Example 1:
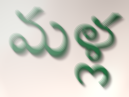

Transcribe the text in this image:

మళ్ల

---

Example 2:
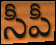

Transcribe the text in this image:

సీపీ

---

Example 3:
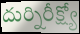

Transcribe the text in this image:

దుర్నిరీక్ష్యో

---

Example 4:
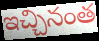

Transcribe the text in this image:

ఇచ్చినంత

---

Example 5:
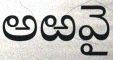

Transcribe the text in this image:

అఱవై